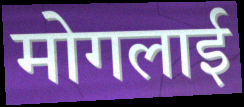
मोगलाई